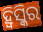
ହ୍ୱିସ୍କିର